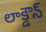
లాక్డౌన్